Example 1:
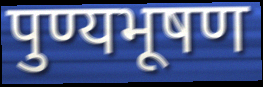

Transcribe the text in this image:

पुण्यभूषण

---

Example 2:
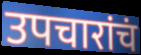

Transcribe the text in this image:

उपचारांचं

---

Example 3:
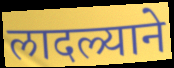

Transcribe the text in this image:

लादल्याने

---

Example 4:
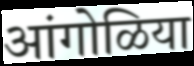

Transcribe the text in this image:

आंगोळिया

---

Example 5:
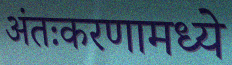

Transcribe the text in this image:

अंतःकरणामध्ये